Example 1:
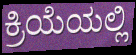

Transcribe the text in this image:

ಕ್ರಿಯೆಯಲ್ಲಿ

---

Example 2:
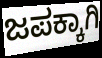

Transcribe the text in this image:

ಜಪಕ್ಕಾಗಿ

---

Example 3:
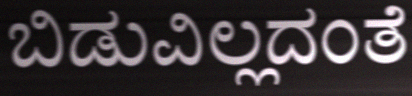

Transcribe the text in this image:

ಬಿಡುವಿಲ್ಲದಂತೆ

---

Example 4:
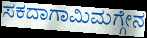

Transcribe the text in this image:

ಸಕದಾಗಾಮಿಮಗ್ಗೇನ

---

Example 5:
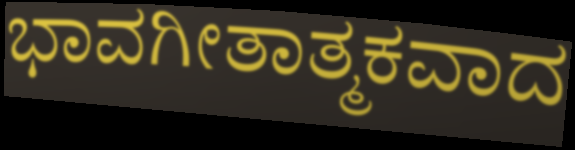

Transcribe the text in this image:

ಭಾವಗೀತಾತ್ಮಕವಾದ